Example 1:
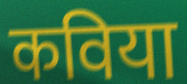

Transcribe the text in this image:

कविया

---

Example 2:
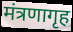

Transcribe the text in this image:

मंत्रणागृह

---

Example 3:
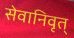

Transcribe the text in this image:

सेवानिवृत्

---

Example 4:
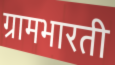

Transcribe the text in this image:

ग्रामभारती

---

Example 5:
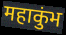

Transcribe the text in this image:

महाकुंभ